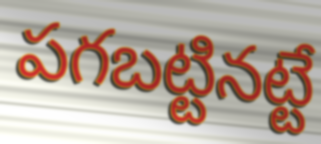
పగబట్టినట్టే